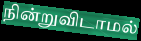
நின்றுவிடாமல்